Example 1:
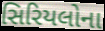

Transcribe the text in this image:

સિરિયલોના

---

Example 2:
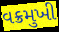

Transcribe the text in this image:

વક્રમુખી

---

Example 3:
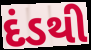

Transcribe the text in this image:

દંડથી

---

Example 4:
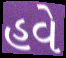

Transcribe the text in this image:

હવે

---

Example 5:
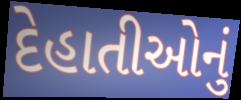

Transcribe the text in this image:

દેહાતીઓનું